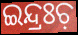
ଇନ୍ଦ୍ରଃଚ଼